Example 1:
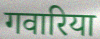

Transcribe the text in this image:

गवारिया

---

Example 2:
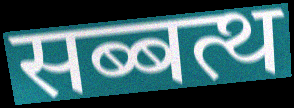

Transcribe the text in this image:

सब्बत्थ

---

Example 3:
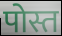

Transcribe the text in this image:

पोस्त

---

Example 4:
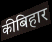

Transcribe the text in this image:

कीबिहार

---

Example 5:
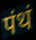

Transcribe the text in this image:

पंथं